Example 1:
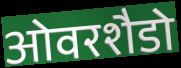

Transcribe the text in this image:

ओवरशैडो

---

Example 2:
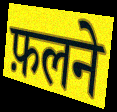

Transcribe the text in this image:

फ़लने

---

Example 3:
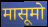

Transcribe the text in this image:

मासूमो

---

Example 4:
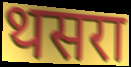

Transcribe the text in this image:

थसरा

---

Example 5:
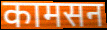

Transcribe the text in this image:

कामसन